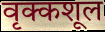
वृक्कशूल